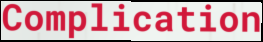
Complication